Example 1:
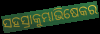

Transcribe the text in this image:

ସହସ୍ରାକୁମ୍ଭାଭିଷେକର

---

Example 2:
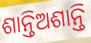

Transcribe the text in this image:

ଶାନ୍ତିଅଶାନ୍ତି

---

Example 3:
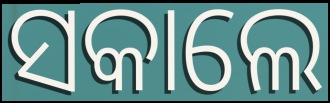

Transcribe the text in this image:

ସକାଲେ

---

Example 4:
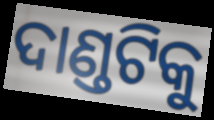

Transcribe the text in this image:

ଦାଣ୍ଡଟିକୁ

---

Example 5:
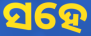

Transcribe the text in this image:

ସହେ